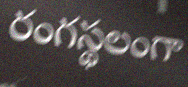
రంగస్థలంగా